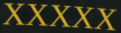
XXXXX